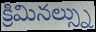
క్రిమినల్స్ను